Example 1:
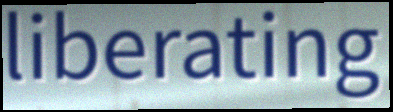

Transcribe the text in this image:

liberating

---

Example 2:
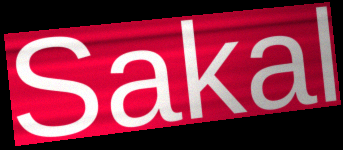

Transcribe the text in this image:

Sakal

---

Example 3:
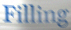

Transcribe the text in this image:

Filling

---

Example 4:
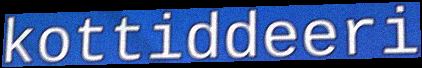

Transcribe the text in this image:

kottiddeeri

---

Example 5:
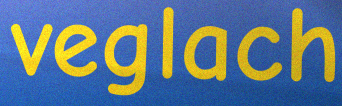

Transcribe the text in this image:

veglach